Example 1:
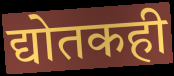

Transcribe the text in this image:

द्योतकही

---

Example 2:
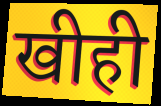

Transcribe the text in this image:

खीही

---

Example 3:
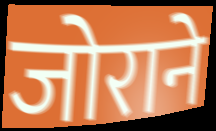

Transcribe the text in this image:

जोराने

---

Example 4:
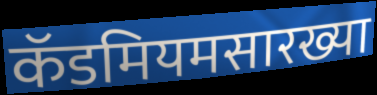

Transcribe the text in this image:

कॅडमियमसारख्या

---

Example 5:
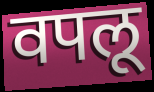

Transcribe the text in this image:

वपलू